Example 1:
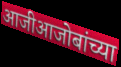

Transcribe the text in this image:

आजीआजोबांच्या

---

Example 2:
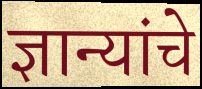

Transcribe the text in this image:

ज्ञान्यांचे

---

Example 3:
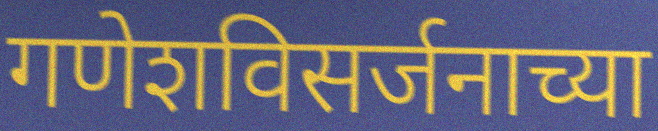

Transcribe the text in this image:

गणेशविसर्जनाच्या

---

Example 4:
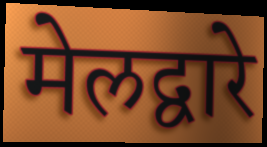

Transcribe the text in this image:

मेलद्वारे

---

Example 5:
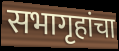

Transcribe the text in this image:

सभागृहांचा